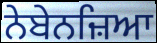
ਨੇਬੇਨਜ਼ਿਆ